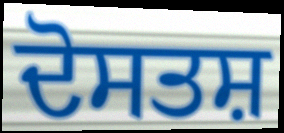
ਦੋਸਤਸ਼